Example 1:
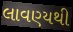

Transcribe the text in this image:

લાવણ્યથી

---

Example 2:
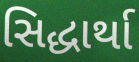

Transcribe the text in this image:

સિદ્ધાર્થા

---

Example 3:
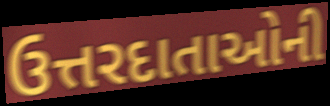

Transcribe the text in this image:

ઉત્તરદાતાઓની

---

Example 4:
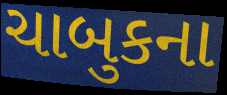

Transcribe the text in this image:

ચાબુકના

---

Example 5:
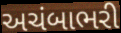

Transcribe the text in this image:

અચંબાભરી